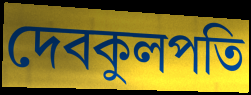
দেবকুলপতি